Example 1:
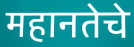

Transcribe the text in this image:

महानतेचे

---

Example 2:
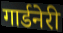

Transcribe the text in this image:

गार्डनेरी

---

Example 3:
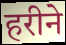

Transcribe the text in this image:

हरीने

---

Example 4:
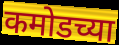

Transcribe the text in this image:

कमोडच्या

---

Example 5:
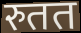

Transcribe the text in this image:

रुतत